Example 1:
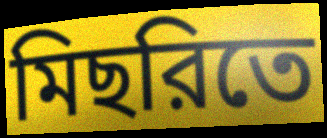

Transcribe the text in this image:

মিছরিতে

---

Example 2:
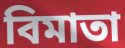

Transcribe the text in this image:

বিমাতা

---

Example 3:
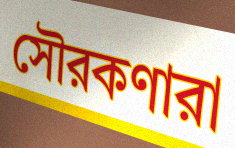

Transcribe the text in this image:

সৌরকণারা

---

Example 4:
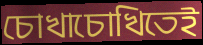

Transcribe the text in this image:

চোখাচোখিতেই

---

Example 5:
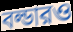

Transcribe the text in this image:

বল্ডারও